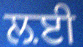
ਲ਼ਈ